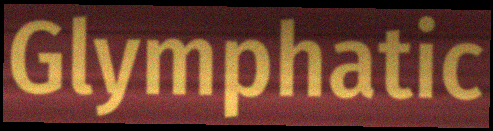
Glymphatic